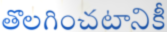
తొలగించటానికీ